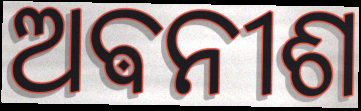
ଅଵନୀଶ